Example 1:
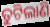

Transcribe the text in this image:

ତୁଟିଲାଣି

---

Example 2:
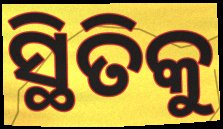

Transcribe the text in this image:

ସ୍ଥିତିକୁ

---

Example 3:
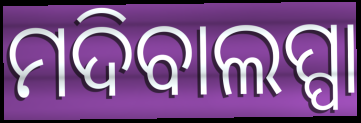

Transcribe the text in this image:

ମଦିବାଲପ୍ପା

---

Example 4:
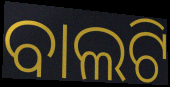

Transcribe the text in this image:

ବାଲଟି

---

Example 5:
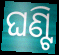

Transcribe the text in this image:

ଘଣ୍ଟି